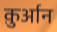
क़ुर्आन